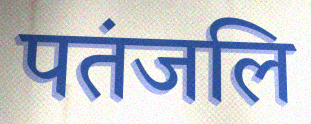
पतंजलि